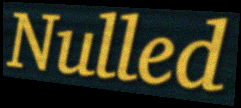
Nulled